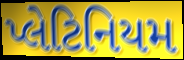
પ્લેટિનિયમ